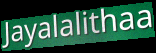
Jayalalithaa